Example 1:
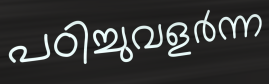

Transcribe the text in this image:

പഠിച്ചുവളർന്ന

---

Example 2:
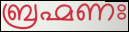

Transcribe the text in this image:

ബ്രഹ്മണഃ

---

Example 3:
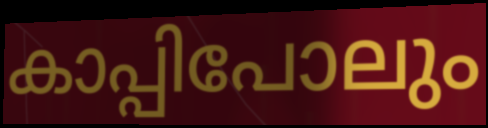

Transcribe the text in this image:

കാപ്പിപോലും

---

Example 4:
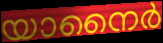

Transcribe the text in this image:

യാനൈർ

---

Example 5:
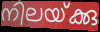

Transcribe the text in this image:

നിലയ്‌ക്കു